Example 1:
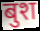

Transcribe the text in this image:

बुश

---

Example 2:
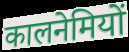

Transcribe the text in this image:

कालनेमियों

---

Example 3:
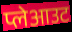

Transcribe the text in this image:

प्लेआउट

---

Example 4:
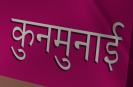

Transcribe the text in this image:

कुनमुनाई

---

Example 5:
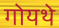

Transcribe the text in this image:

गोयथे